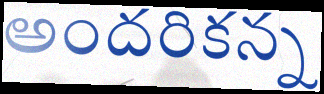
అందరికన్న